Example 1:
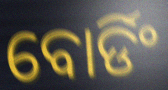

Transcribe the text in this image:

ବୋର୍ଡିଂ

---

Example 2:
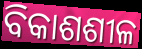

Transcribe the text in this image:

ବିକାଶଶୀଳ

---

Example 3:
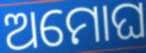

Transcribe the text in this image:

ଅମୋଘ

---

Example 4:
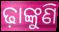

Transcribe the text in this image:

ଢ଼ାଙ୍କୁଣି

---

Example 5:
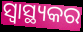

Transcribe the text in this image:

ସ୍ୱାସ୍ଥ୍ୟକର